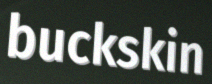
buckskin